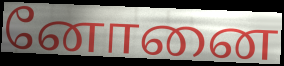
னோனை